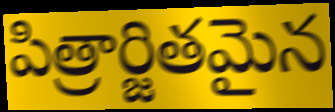
పిత్రార్జితమైన